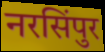
नरसिंपुर